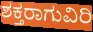
ಶಕ್ತರಾಗುವಿರಿ